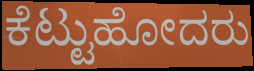
ಕೆಟ್ಟುಹೋದರು